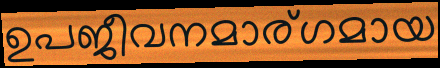
ഉപജീവനമാര്ഗമായ